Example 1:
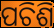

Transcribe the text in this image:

ପଚିଶି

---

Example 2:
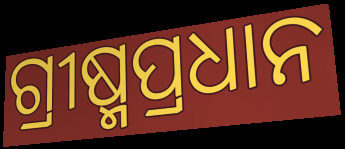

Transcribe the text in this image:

ଗ୍ରୀଷ୍ମପ୍ରଧାନ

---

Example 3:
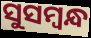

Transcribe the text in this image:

ସୁସମ୍ବନ୍ଧ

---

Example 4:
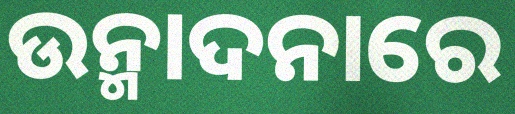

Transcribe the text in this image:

ଉନ୍ମାଦନାରେ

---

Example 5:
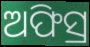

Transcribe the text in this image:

ଅଫିସ୍ର